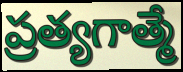
ప్రత్యగాత్మే